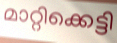
മാറ്റിക്കെട്ടി